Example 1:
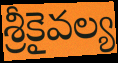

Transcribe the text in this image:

శ్రీకైవల్య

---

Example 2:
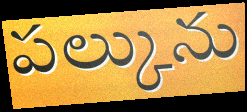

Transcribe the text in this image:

పల్కును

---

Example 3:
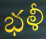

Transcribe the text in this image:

భళీ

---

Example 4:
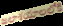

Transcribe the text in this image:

జలాశయాలలోకి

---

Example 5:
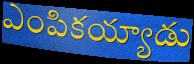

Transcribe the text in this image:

ఎంపికయ్యాడు